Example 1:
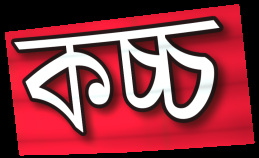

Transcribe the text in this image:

কচ্চ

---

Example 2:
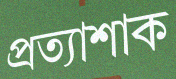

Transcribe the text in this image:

প্ৰত্যাশাক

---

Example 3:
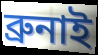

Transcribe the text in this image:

ব্ৰুনাই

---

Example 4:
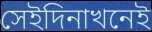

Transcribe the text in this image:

সেইদিনাখনেই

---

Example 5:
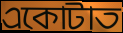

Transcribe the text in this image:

একোটাত